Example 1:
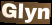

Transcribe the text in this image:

Glyn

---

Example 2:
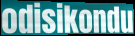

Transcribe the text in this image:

odisikondu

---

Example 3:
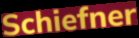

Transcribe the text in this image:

Schiefner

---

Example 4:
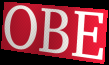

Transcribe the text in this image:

OBE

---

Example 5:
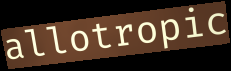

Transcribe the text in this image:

allotropic